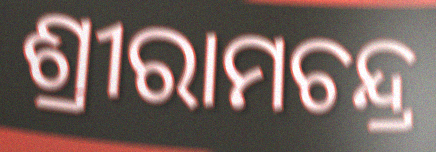
ଶ୍ରୀରାମଚନ୍ଦ୍ର